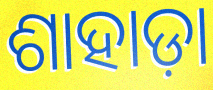
ଶାହାଡ଼ା